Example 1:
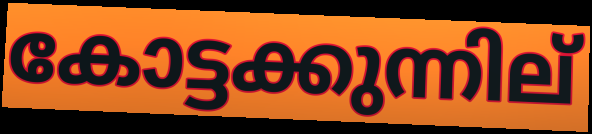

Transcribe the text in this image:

കോട്ടക്കുന്നില്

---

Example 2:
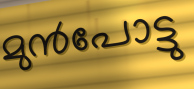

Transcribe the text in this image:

മുൻപോട്ടു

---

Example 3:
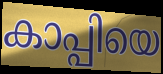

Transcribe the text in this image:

കാപ്പിയെ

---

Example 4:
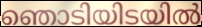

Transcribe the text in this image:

ഞൊടിയിടയിൽ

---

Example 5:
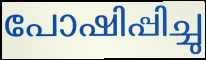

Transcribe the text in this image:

പോഷിപ്പിച്ചു